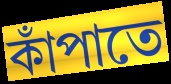
কাঁপাতে